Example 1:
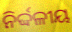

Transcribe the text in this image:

ନିର୍ଦ୍ଦଳୀୟ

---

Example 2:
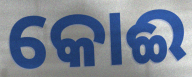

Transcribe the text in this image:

କୋଈ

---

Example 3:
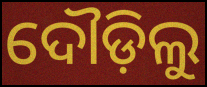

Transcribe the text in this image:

ଦୌଡ଼ିଲୁ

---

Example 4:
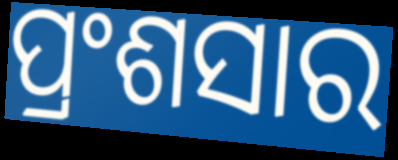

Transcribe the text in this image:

ପ୍ରଂଶସାର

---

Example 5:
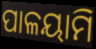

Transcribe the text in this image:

ପାଳୟାମି